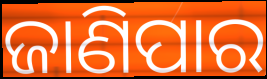
ଜାଣିପାର